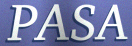
PASA